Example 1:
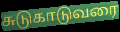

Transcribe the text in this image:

சுடுகாடுவரை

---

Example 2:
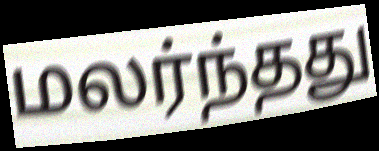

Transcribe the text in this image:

மலர்ந்தது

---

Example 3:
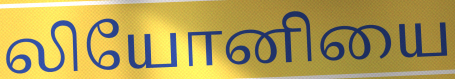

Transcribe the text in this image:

லியோனியை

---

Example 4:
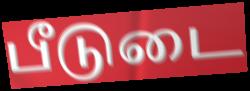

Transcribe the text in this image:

பீடுடை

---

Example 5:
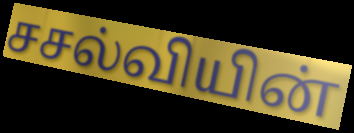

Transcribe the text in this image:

சசல்வியின்